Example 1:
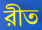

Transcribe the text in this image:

রীত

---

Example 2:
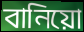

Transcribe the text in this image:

বানিয়ো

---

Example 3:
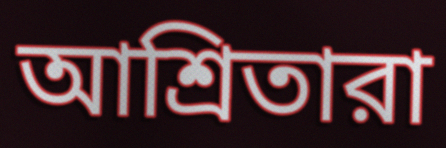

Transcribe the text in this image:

আশ্রিতারা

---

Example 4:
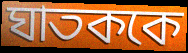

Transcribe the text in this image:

ঘাতককে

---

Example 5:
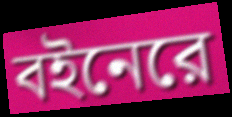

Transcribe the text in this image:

বইনেরে